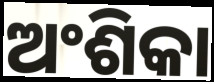
ଅଂଶିକା